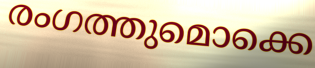
രംഗത്തുമൊക്കെ